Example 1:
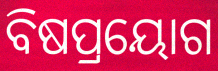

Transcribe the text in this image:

ବିଷପ୍ରୟୋଗ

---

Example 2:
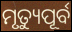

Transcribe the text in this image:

ମୃତ୍ୟୁପୂର୍ବ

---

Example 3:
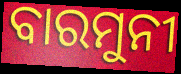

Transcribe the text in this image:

ବାରମୁନୀ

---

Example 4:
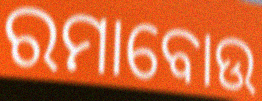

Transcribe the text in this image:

ରମାବୋଉ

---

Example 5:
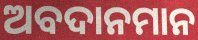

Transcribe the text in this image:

ଅବଦାନମାନ